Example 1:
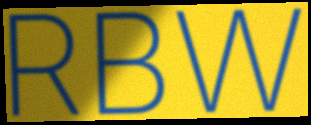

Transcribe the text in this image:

RBW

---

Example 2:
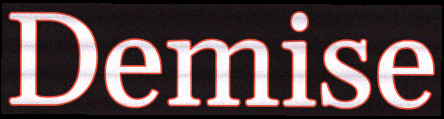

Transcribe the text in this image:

Demise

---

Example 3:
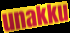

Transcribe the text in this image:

unakku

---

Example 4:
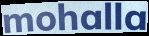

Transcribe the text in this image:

mohalla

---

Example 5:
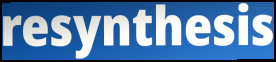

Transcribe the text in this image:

resynthesis